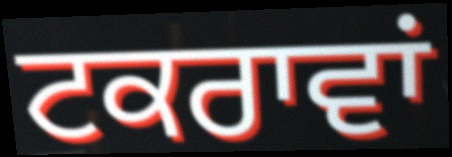
ਟਕਰਾਵਾਂ